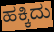
ಹಕ್ಕಿದು